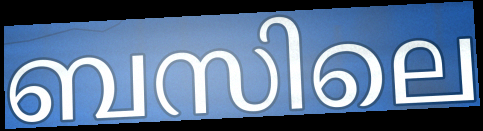
ബസിലെ